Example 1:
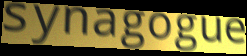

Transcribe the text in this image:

synagogue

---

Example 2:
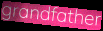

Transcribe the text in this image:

grandfather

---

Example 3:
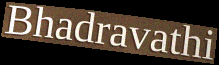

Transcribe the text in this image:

Bhadravathi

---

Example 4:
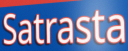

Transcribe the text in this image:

Satrasta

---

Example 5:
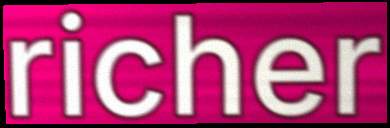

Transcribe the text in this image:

richer